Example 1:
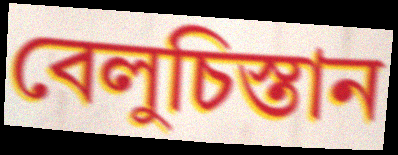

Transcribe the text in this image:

বেলুচিস্তান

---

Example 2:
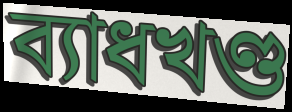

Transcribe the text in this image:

ব্যাধখণ্ড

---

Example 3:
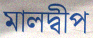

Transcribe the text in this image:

মালদ্বীপ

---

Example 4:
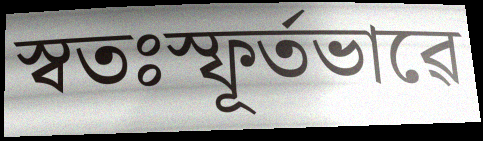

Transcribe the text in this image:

স্বতঃস্ফূৰ্তভাৱে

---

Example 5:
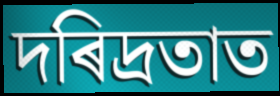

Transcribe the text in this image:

দৰিদ্ৰতাত